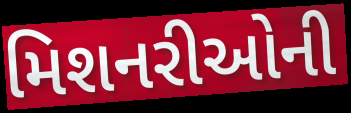
મિશનરીઓની